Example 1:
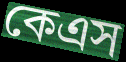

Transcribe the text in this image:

কেএস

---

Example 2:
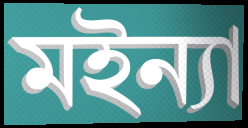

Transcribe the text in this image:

মইন্যা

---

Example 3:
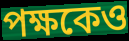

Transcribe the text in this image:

পক্ষকেও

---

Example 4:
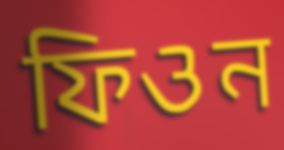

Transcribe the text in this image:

ফিওন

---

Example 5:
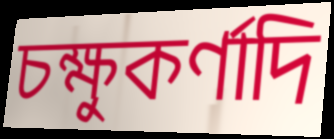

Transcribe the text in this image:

চক্ষুকর্ণাদি